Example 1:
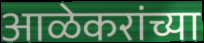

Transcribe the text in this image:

आळेकरांच्या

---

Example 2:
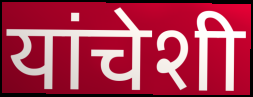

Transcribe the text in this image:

यांचेशी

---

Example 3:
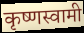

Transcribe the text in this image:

कृष्णस्वामी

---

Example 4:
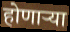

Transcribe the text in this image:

होणार्‍या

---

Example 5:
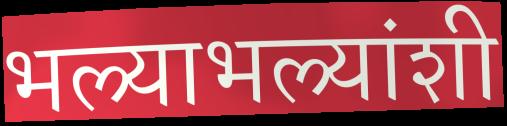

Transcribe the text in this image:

भल्याभल्यांशी